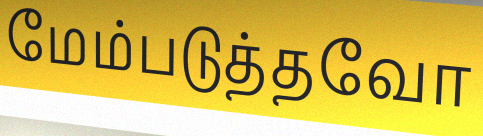
மேம்படுத்தவோ